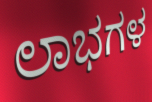
ಲಾಭಗಳ